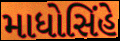
માધોસિંહે